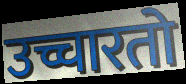
उच्चारतो